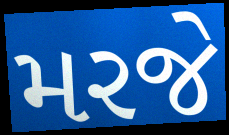
મરજે